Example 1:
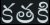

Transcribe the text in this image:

కతకి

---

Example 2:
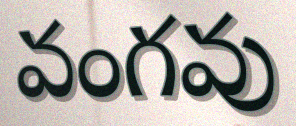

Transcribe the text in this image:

వంగవు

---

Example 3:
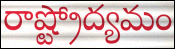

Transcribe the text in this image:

రాష్ట్రోద్యమం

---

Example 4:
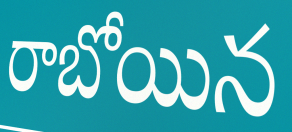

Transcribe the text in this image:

రాబోయిన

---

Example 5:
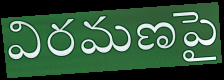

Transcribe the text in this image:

విరమణపై